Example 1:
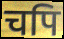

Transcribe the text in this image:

चपि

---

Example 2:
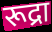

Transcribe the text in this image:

रूद्रा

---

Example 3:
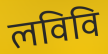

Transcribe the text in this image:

लविवि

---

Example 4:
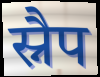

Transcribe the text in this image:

स्नैप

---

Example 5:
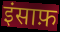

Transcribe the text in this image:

इंसाफ़